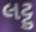
લટ્ટુ